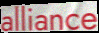
alliance